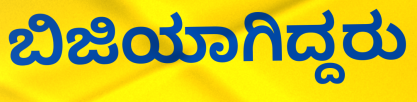
ಬಿಜಿಯಾಗಿದ್ದರು